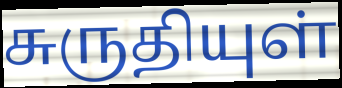
சுருதியுள்